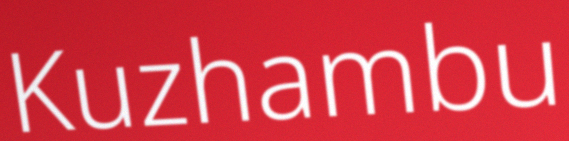
Kuzhambu